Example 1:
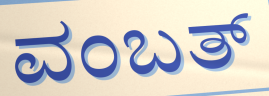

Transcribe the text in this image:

ವಂಬತ್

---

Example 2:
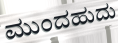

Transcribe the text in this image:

ಮುಂದಹುದು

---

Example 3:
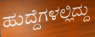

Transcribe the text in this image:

ಹುದ್ದೆಗಳಲ್ಲಿದ್ದು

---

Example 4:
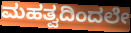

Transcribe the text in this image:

ಮಹತ್ವದಿಂದಲೇ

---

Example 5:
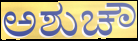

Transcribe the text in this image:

ಅಶುಚೌ